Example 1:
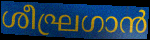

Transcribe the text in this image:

ശീഘ്രഗാൻ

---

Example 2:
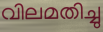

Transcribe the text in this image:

വിലമതിച്ചു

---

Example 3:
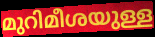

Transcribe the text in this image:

മുറിമീശയുള്ള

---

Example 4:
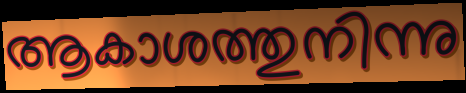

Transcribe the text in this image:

ആകാശത്തുനിന്നു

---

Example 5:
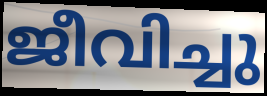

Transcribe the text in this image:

ജീവിച്ചു